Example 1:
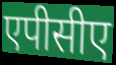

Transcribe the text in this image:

एपीसीए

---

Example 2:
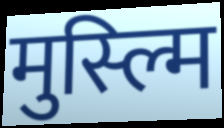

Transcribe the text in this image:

मुस्ल्मि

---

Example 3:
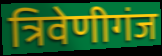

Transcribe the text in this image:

त्रिवेणीगंज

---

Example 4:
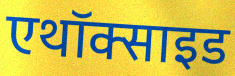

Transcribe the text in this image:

एथॉक्साइड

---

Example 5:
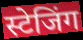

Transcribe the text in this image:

स्टेजिंग